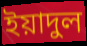
ইয়াদুল